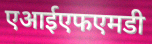
एआईएफएमडी